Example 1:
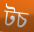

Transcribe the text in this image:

টচ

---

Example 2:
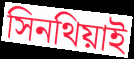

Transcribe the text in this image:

সিনথিয়াই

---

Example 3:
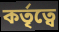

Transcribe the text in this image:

কর্তৃত্বে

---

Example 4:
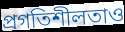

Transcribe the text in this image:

প্রগতিশীলতাও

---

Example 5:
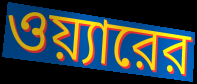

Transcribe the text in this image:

ওয়্যারের